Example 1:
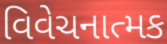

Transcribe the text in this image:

વિવેચનાત્મક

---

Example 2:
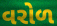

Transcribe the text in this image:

વરોળ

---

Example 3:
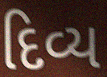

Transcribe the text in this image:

દિવ્ય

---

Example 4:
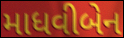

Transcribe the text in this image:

માધવીબેન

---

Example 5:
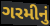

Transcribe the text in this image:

ગરમીનું